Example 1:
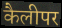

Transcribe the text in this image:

कैलीपर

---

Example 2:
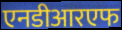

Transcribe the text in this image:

एनडीआरएफ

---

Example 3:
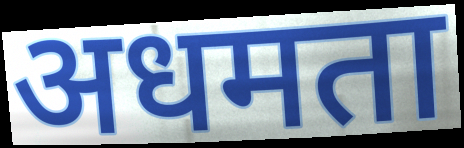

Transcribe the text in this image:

अधमता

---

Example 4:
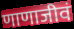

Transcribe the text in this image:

णाणाजीवं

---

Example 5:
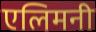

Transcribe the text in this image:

एलिमनी